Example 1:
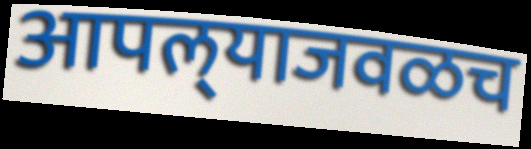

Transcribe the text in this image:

आपल्याजवळच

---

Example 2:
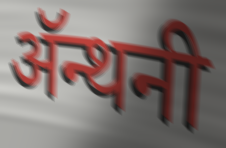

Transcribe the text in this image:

ॲन्थनी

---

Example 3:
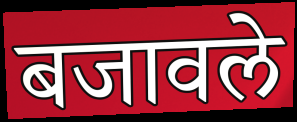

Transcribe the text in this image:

बजावले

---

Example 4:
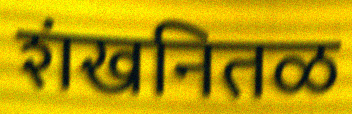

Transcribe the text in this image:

शंखनितळ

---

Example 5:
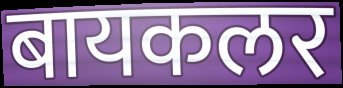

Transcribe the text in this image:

बायकलर